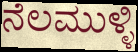
ನೆಲಮುಳ್ಳಿ